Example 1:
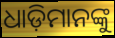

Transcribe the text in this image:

ଧାଡ଼ିମାନଙ୍କୁ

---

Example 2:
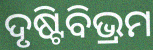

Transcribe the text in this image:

ଦୃଷ୍ଟିବିଭ୍ରମ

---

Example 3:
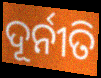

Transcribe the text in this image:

ଦୂର୍ନୀତି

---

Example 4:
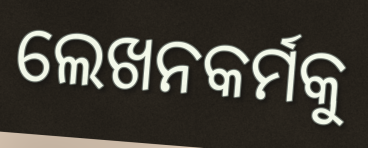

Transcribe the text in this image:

ଲେଖନକର୍ମକୁ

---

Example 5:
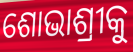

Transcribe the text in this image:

ଶୋଭାଶ୍ରୀକୁ